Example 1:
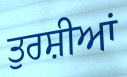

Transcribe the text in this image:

ਤੁਰਸ਼ੀਆਂ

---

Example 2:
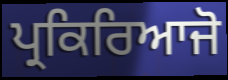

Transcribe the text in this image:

ਪ੍ਰਕਿਰਿਆਜੋ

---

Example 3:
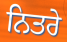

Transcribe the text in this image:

ਨਿਤਰੇ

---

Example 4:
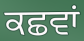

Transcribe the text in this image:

ਕਛਵਾਂ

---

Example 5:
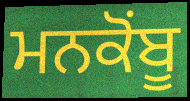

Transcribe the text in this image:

ਮਨਕੋਂਬੂ